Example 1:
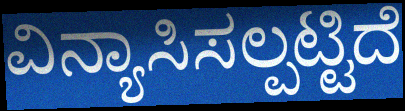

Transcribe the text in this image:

ವಿನ್ಯಾಸಿಸಲ್ಪಟ್ಟಿದೆ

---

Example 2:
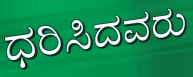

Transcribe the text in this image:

ಧರಿಸಿದವರು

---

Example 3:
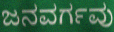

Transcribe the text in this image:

ಜನವರ್ಗವು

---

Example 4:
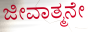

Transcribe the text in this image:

ಜೀವಾತ್ಮನೇ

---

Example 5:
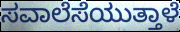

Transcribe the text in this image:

ಸವಾಲೆಸೆಯುತ್ತಾಳೆ